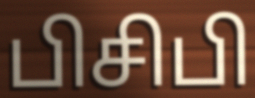
பிசிபி